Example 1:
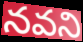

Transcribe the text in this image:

నవని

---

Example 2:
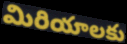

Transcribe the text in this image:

మిరియాలకు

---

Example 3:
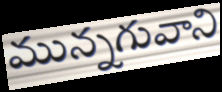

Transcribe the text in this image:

మున్నగువాని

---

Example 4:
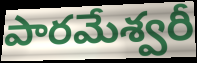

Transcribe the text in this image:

పారమేశ్వరీ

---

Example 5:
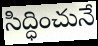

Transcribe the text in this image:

సిద్ధించునే